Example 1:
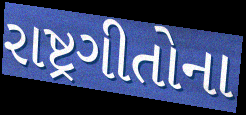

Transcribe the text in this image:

રાષ્ટ્રગીતોના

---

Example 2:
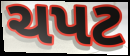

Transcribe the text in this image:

ચપટ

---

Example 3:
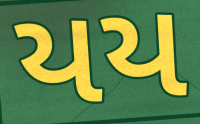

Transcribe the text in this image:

યય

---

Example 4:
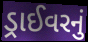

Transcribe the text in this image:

ડ્રાઈવરનું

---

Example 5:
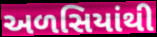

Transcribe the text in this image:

અળસિયાંથી